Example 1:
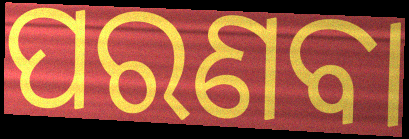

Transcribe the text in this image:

ପରଣବା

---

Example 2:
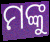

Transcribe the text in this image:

ମଙ୍କୁ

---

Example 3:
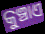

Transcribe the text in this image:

କୁଞ୍ଚାଏ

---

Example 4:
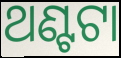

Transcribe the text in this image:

ଥଣ୍ଟଟା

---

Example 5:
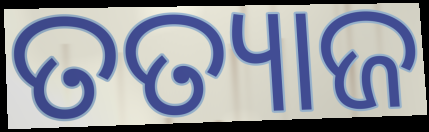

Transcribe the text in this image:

ତତ୍ୟାଜ